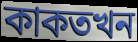
কাকতখন